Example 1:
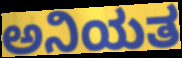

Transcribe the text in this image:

ಅನಿಯತ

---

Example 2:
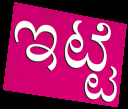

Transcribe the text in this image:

ಇಟ್ಟೆ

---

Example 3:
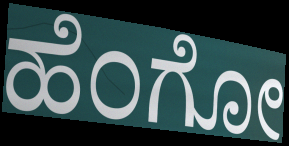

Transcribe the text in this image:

ಹೆಂಗೋ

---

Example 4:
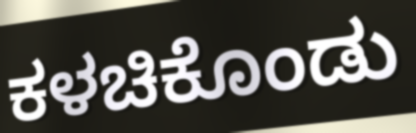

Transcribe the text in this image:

ಕಳಚಿಕೊಂಡು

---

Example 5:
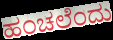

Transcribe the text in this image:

ಹಂಚಲೆಂದು